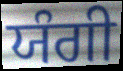
ਯੰਗੀ